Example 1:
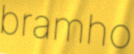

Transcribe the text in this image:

bramho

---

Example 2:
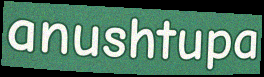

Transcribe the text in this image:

anushtupa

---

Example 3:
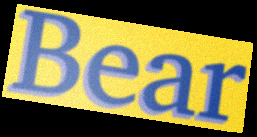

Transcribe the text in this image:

Bear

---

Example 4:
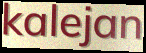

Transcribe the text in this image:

kalejan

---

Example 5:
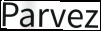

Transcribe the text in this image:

Parvez